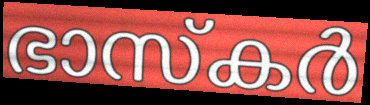
ഭാസ്‌കർ